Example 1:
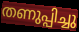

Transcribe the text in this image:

തണുപ്പിച്ചു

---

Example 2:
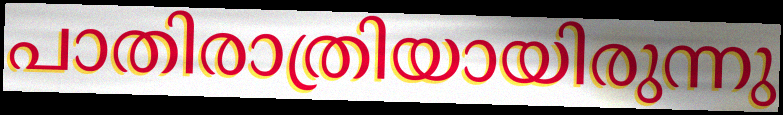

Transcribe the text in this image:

പാതിരാത്രിയായിരുന്നു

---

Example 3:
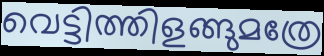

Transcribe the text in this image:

വെട്ടിത്തിളങ്ങുമത്രേ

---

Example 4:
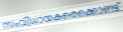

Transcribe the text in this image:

സംവിധായകരെക്കൊണ്ട്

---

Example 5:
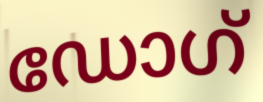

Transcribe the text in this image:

ഡോഗ്